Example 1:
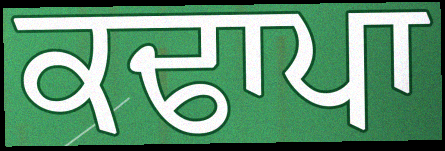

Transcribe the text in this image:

ਕਢਾਪਾ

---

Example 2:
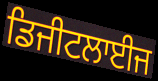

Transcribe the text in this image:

ਡਿਜੀਟਲਾਈਜ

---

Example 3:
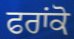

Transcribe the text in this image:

ਫਰਾਂਕੋ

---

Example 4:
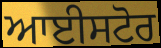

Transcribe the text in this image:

ਆਈਸਟੋਰ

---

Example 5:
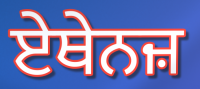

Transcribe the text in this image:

ਏਥੇਨਜ਼